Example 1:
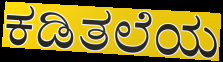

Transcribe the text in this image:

ಕಡಿತಲೆಯ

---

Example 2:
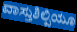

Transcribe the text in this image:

ವಾಸ್ತುಶಿಲ್ಪಿಯೂ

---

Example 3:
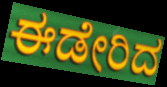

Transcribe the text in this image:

ಈಡೇರಿದ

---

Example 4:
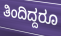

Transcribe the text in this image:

ತಿಂದಿದ್ದರೂ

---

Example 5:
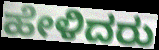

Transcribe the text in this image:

ಹೇಳಿದರು